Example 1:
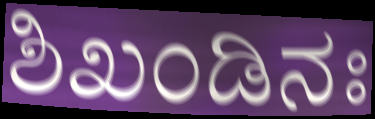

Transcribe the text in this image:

ಶಿಖಂಡಿನಃ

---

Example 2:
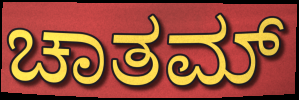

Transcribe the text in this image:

ಚಾತಮ್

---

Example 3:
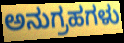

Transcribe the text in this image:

ಅನುಗ್ರಹಗಳು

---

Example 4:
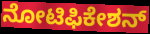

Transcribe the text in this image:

ನೋಟಿಫಿಕೇಶನ್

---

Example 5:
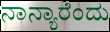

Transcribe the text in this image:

ನಾನ್ಯಾರೆಂದು